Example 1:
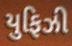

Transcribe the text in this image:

યુફિઝી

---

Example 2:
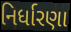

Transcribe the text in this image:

નિર્ધારણા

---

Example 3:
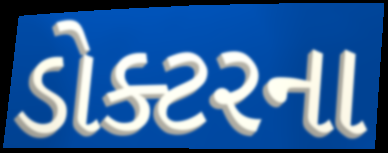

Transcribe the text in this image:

ડોક્ટરના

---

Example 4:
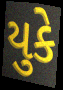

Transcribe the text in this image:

યુકે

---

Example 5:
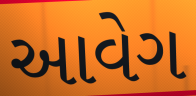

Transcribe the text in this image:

આવેગ